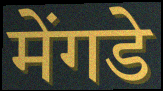
मेंगडे